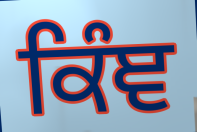
ਕਿੰਞ